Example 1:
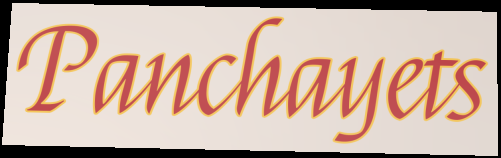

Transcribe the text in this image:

Panchayets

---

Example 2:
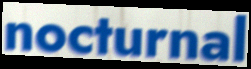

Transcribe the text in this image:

nocturnal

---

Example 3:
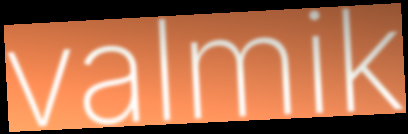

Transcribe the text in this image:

valmik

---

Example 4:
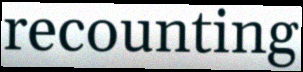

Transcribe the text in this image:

recounting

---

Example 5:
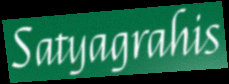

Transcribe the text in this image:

Satyagrahis